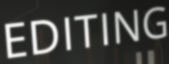
EDITING